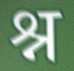
श्न